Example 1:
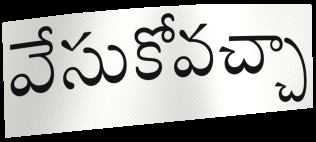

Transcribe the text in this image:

వేసుకోవచ్చా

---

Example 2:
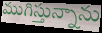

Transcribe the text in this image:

ముగిస్తున్నాను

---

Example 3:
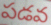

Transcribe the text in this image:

పడవ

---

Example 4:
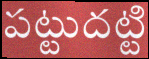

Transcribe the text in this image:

పట్టుదట్టి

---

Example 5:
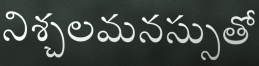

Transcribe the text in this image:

నిశ్చలమనస్సుతో